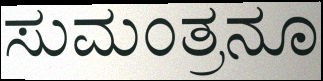
ಸುಮಂತ್ರನೂ